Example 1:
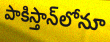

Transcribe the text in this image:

పాకిస్తాన్‌లోనూ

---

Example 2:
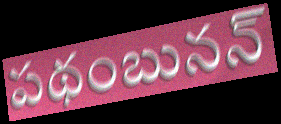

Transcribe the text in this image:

పథంబునన్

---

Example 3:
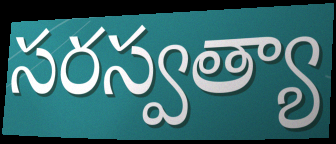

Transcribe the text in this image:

సరస్వత్యా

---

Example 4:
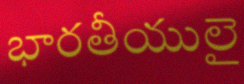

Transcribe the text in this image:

భారతీయులై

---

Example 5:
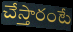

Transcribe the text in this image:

చేస్తారంటే